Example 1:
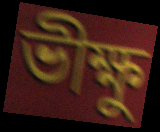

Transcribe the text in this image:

ভীক্ষু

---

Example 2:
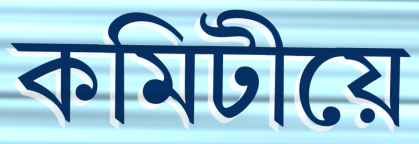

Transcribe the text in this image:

কমিটীয়ে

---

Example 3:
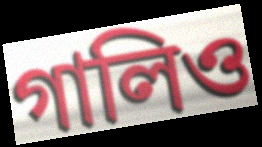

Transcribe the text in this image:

গালিও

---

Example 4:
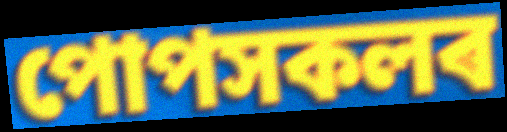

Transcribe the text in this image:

পোপসকলৰ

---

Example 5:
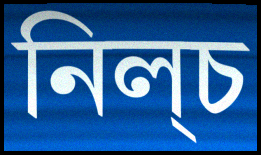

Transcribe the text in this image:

নিল্চ